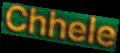
Chhele